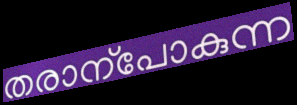
തരാന്പോകുന്ന